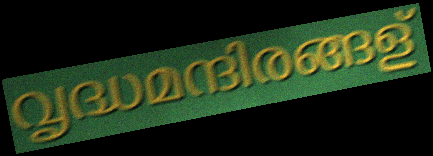
വൃദ്ധമന്ദിരങ്ങള്